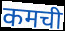
कमची